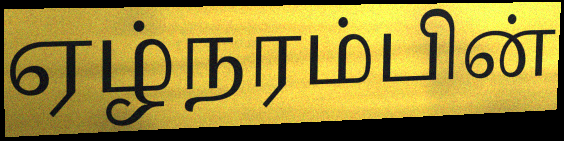
ஏழ்நரம்பின்